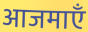
आजमाएँ